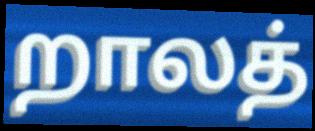
றாலத்